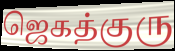
ஜெகத்குரு